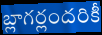
బ్లాగర్లందరికీ